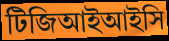
টিজিআইআইসি